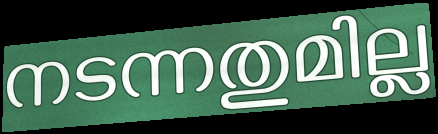
നടന്നതുമില്ല